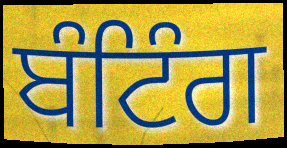
ਬੰਟਿੰਗ